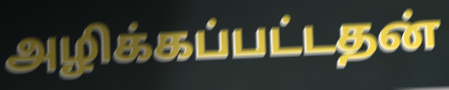
அழிக்கப்பட்டதன்